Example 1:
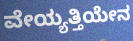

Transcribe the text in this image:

ವೇಯ್ಯತ್ತಿಯೇನ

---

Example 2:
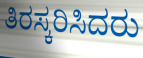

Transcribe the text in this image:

ತಿರಸ್ಕರಿಸಿದರು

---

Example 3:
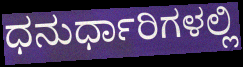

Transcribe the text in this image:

ಧನುರ್ಧಾರಿಗಳಲ್ಲಿ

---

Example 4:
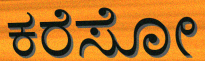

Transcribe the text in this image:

ಕರೆಸೋ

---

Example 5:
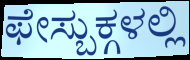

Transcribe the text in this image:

ಫೇಸ್ಬುಕ್ಗಳಲ್ಲಿ